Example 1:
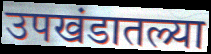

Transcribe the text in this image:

उपखंडातल्या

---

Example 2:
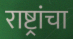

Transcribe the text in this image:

राष्ट्रांचा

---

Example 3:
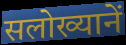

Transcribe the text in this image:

सलोख्यानें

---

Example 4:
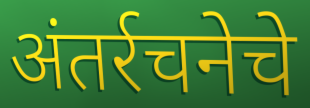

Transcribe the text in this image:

अंतर्रचनेचे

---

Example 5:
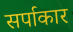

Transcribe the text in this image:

सर्पाकार